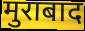
मुराबाद